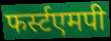
फर्स्टएमपी